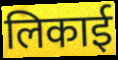
लिकाई